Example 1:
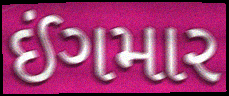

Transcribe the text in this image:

ઈંગમાર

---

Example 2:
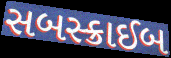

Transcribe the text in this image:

સબસ્ક્રાઈબ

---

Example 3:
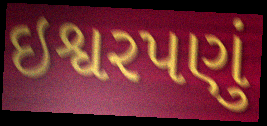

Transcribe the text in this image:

ઇશ્વરપણું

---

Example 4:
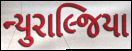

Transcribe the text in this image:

ન્યુરાલ્જિયા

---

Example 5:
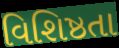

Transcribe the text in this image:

વિશિષ્ઠતા